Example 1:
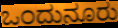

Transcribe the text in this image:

ಒಂದುನೂರು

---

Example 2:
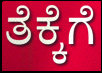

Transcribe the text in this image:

ತೆಕ್ಕೆಗೆ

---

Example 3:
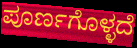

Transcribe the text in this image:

ಪೂರ್ಣಗೊಳ್ಳದೆ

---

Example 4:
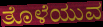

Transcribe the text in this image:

ತೊಳೆಯುವ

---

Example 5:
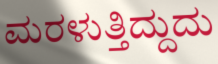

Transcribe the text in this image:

ಮರಳುತ್ತಿದ್ದುದು